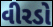
વીરડો